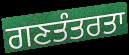
ਗਣਤੰਤਰਤਾ